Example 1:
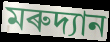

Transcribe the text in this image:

মৰুদ্যান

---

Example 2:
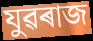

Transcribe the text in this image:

যুৱৰাজ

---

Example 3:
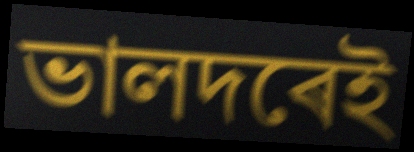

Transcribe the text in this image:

ভালদৰেই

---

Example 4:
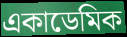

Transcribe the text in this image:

একাডেমিক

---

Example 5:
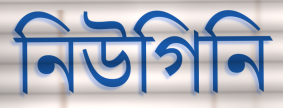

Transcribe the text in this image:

নিউগিনি